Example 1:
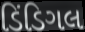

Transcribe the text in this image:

ડિંડિગલ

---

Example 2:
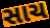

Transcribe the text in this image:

સાચ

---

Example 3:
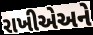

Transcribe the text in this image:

રાખીએઅને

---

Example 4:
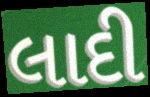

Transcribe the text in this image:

લાદી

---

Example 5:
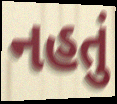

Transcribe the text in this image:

નહતું